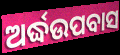
ଅର୍ଦ୍ଧଉପବାସ